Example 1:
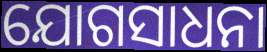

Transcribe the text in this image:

ଯୋଗସାଧନା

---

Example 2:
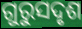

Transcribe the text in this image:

ଗୁରୁସଦୃଶ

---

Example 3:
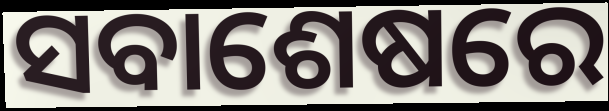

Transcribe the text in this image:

ସବାଶେଷରେ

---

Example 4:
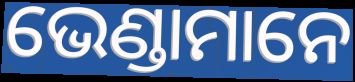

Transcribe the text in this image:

ଭେଣ୍ଡାମାନେ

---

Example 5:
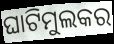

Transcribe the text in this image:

ଘାଟିମୁଲକର